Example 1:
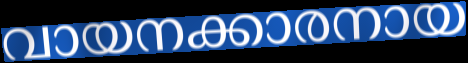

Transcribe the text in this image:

വായനക്കാരനായ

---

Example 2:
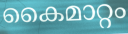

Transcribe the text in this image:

കൈമാറ്റം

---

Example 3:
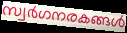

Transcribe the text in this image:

സ്വർഗനരകങ്ങൾ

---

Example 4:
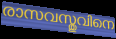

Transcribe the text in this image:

രാസവസ്തുവിനെ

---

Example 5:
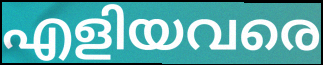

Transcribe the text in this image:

എളിയവരെ